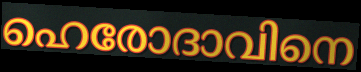
ഹെരോദാവിനെ